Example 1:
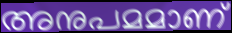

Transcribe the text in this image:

അനുപമമാണ്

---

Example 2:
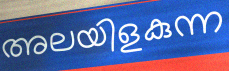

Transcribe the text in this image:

അലയിളകുന്ന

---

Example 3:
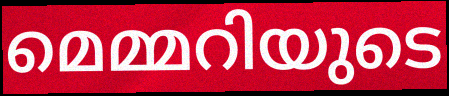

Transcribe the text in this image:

മെമ്മറിയുടെ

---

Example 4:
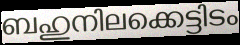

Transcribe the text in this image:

ബഹുനിലക്കെട്ടിടം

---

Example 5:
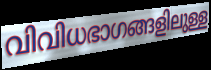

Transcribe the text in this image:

വിവിധഭാഗങ്ങളിലുള്ള